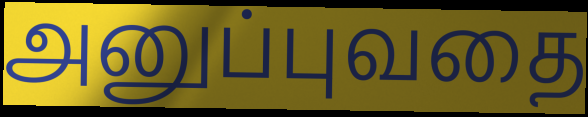
அனுப்புவதை